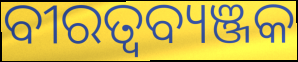
ବୀରତ୍ବବ୍ୟଞ୍ଜକ